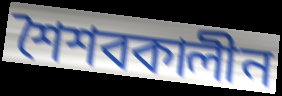
শৈশবকালীন